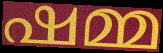
ഷമ്മ